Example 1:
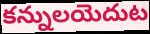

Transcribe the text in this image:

కన్నులయెదుట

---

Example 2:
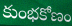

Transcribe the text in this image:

కుంభకోణం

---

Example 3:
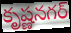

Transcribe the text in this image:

కృష్ణనగర్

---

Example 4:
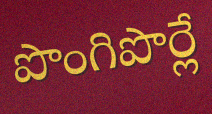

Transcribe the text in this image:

పొంగిపొర్లే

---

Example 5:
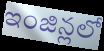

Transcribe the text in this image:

ఇంజిన్లలో